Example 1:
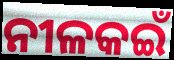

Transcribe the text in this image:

ନୀଳକଇଁ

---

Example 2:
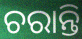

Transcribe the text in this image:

ଚରାନ୍ତି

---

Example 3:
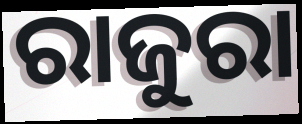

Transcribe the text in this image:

ରାଜୁରା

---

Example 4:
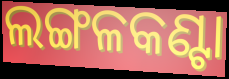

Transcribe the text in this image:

ଲଙ୍ଗଳକଣ୍ଟା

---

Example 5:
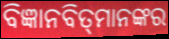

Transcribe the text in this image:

ବିଜ୍ଞାନବିତ୍‌ମାନଙ୍କର